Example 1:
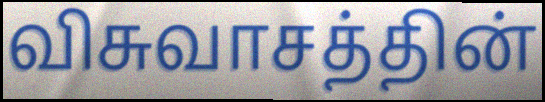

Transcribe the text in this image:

விசுவாசத்தின்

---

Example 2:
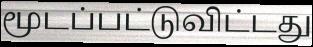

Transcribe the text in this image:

மூடப்பட்டுவிட்டது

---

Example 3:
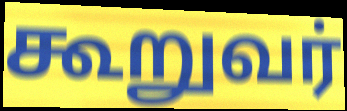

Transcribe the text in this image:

கூறுவர்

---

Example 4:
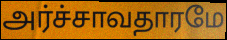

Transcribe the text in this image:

அர்ச்சாவதாரமே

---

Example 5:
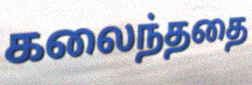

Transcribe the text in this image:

கலைந்ததை